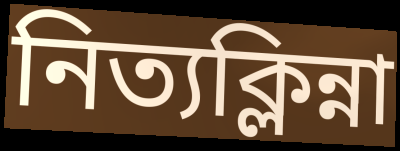
নিত্যক্লিন্না